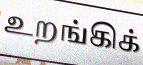
உறங்கிக்